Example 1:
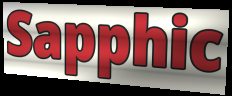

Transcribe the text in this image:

Sapphic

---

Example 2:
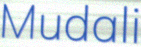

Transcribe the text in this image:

Mudali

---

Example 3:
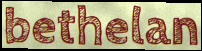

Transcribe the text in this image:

bethelan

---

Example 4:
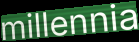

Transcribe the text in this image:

millennia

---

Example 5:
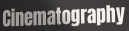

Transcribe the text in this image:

Cinematography